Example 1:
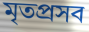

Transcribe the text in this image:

মৃতপ্রসব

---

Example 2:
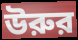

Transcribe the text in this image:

উরুর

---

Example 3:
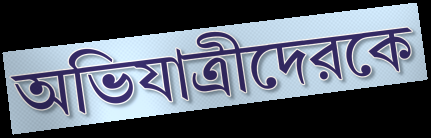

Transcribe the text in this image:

অভিযাত্রীদেরকে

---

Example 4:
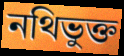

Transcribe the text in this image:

নথিভুক্ত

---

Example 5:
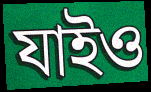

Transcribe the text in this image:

যাইও